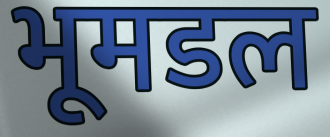
भूमडल